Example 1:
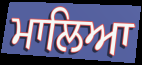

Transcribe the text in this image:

ਮਾਲਿਆ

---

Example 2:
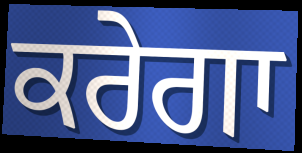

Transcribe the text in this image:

ਕਰੇਗਾ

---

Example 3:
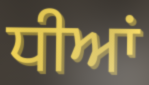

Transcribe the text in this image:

ਧੀਆਂ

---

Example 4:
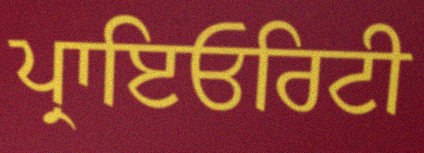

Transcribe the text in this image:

ਪ੍ਰਾਇਓਰਿਟੀ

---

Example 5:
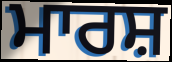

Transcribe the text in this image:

ਮਾਰਸ਼